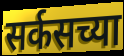
सर्कसच्या